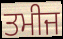
ਤਮੀਜ